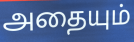
அதையும்